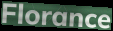
Florance